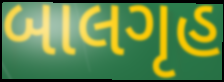
બાલગૃહ